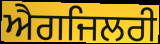
ਐਗਜਿਲਰੀ